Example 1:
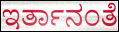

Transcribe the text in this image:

ಇರ್ತಾನಂತೆ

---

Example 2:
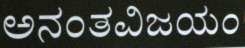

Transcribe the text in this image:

ಅನಂತವಿಜಯಂ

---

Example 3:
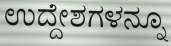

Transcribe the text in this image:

ಉದ್ದೇಶಗಳನ್ನೂ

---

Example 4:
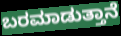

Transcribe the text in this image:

ಬರಮಾಡುತ್ತಾನೆ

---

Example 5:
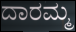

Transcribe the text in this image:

ದಾರಮ್ಮ